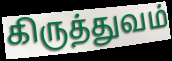
கிருத்துவம்